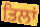
ਤਿਲਾਂ